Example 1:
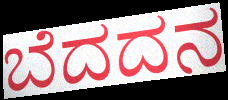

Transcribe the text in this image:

ಬೆದದನ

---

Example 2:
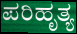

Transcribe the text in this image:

ಪರಿಹೃತ್ಯ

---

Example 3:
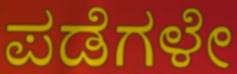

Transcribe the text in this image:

ಪಡೆಗಳೇ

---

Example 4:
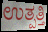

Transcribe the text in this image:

ಉತ್ಪತ್ತಿ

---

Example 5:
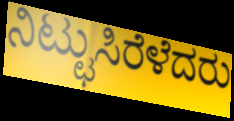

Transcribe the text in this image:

ನಿಟ್ಟುಸಿರೆಳೆದರು